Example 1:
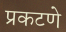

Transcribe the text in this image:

प्रकटणे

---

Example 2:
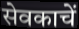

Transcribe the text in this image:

सेवकाचें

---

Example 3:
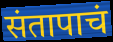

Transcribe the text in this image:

संतापाचं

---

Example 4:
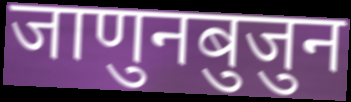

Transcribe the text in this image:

जाणुनबुजुन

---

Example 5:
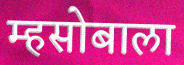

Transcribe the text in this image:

म्हसोबाला